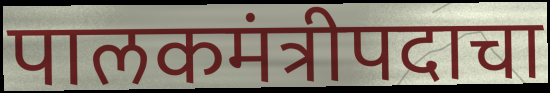
पालकमंत्रीपदाचा